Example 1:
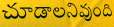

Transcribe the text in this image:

చూడాలనివుంది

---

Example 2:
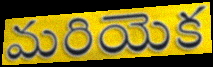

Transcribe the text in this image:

మరియెక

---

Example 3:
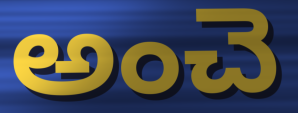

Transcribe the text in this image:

అంచె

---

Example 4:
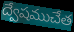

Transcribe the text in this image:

ద్వేషముచేత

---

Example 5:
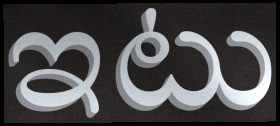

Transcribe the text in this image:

ఇటు